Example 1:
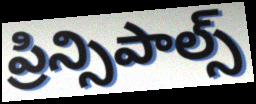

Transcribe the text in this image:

ప్రిన్సిపాల్స్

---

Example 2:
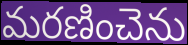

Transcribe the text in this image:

మరణించెను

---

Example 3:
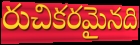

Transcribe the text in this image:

రుచికరమైనది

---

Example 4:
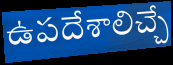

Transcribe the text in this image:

ఉపదేశాలిచ్చే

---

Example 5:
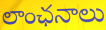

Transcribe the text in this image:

లాంఛనాలు